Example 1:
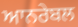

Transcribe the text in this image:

ਆਨਰੇਬਲ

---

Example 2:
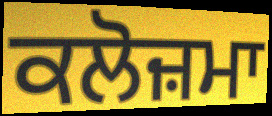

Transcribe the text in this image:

ਕਲੋਜ਼ਮਾ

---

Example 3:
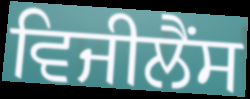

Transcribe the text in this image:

ਵਿਜੀਲੈਂਸ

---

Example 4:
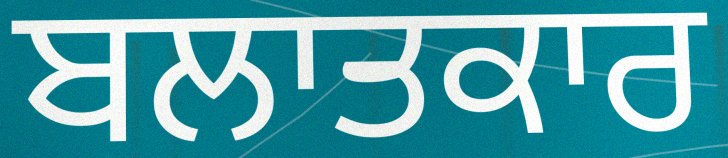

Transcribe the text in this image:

ਬਲਾਤਕਾਰ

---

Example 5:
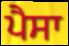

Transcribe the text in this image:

ਪੈਸਾ